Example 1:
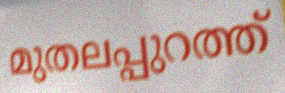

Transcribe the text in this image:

മുതലപ്പുറത്ത്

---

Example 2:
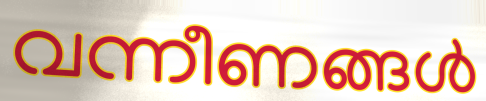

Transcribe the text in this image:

വന്നീണങ്ങൾ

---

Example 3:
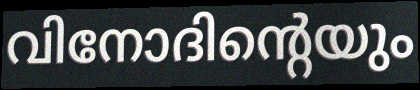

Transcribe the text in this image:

വിനോദിന്റെയും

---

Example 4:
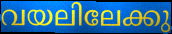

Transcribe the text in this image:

വയലിലേക്കു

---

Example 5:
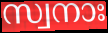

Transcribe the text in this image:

സ്വനാഃ